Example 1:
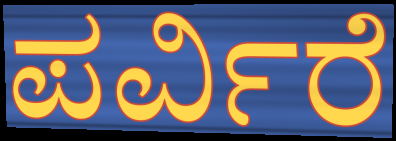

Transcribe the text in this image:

ಪರ್ವಿರೆ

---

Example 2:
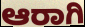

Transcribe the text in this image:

ಆರಾಗಿ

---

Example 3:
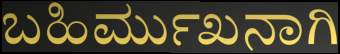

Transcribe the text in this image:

ಬಹಿರ್ಮುಖನಾಗಿ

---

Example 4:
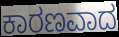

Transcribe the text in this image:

ಕಾರಣವಾದ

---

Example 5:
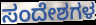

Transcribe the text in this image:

ಸಂದೇಶಗಳ